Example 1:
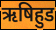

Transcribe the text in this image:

ऋषिहुड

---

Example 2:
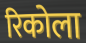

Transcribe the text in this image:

रिकोला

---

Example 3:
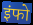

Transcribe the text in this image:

इंफो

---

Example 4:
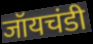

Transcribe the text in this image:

जॉयचंडी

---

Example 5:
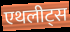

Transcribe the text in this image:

एथलीट्स